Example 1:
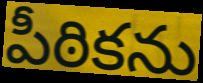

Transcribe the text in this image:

పీఠికను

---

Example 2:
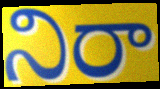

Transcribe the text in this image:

నిరా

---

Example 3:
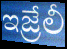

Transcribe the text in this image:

ఇజ్రేలీ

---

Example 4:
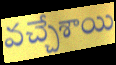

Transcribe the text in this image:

వచ్చేశాయి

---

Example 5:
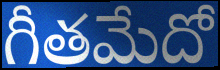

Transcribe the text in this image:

గీతమేదో